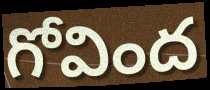
గోవింద